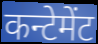
कन्टेमेंट